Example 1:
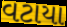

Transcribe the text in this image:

વટાયા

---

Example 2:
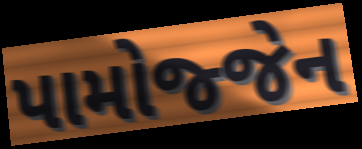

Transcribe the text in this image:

પામોજ્જેન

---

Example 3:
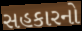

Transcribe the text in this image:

સહકારનો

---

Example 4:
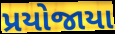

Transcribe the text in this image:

પ્રયોજાયા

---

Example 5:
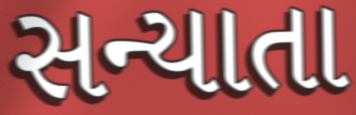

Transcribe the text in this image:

સન્યાતા